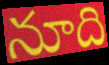
నూది